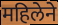
महिलेने